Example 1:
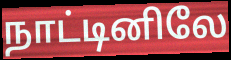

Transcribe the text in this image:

நாட்டினிலே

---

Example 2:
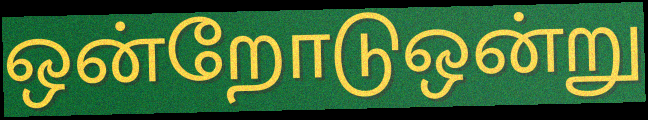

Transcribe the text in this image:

ஒன்றோடுஒன்று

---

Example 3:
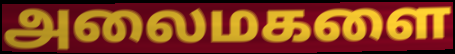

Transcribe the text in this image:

அலைமகளை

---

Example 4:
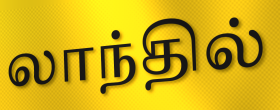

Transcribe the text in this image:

லாந்தில்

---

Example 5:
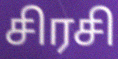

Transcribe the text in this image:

சிரசி